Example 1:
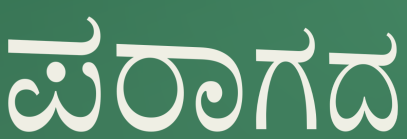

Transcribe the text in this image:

ಪರಾಗದ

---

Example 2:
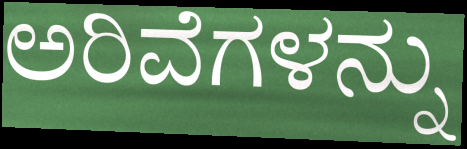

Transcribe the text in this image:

ಅರಿವೆಗಳನ್ನು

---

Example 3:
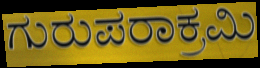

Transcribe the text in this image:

ಗುರುಪರಾಕ್ರಮಿ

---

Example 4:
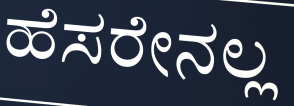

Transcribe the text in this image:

ಹೆಸರೇನಲ್ಲ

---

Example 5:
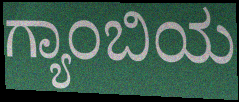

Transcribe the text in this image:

ಗ್ಯಾಂಬಿಯ